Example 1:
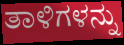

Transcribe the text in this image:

ತಾಳಿಗಳನ್ನು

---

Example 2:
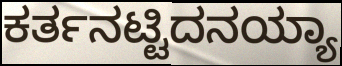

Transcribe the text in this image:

ಕರ್ತನಟ್ಟಿದನಯ್ಯಾ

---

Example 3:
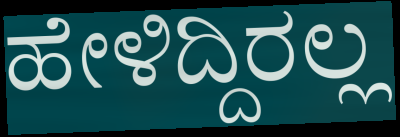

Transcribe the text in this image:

ಹೇಳಿದ್ದಿರಲ್ಲ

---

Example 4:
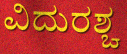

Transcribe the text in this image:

ವಿದುರಶ್ಚ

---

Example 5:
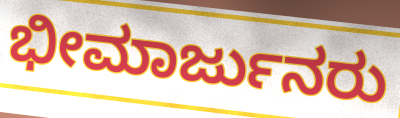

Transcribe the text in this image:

ಭೀಮಾರ್ಜುನರು